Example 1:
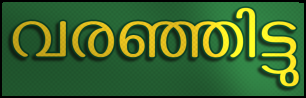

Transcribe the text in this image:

വരഞ്ഞിട്ടു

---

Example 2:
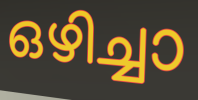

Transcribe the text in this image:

ഒഴിച്ചാ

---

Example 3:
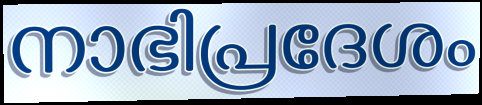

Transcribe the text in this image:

നാഭിപ്രദേശം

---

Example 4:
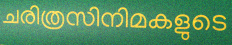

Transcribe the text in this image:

ചരിത്രസിനിമകളുടെ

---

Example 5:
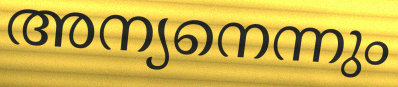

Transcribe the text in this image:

അന്യനെന്നും